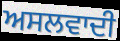
ਅਸਲਵਾਦੀ